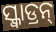
ସ୍କ୍ୱାଡ୍ରନ୍